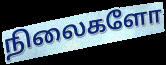
நிலைகளோ